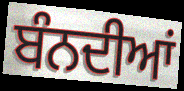
ਬੰਨਦੀਆਂ